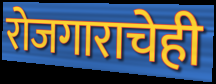
रोजगाराचेही